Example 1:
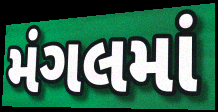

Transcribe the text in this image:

મંગલમાં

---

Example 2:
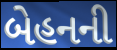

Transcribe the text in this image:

બેહનની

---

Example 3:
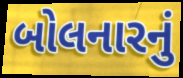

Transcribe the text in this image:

બોલનારનું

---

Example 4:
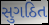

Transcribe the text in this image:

સુગઠિત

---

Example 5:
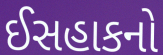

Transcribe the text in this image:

ઈસહાકનો